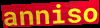
anniso